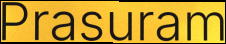
Prasuram